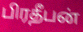
பிரதீபன்